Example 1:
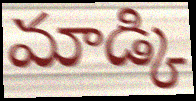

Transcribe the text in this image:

మాడ్కి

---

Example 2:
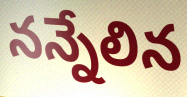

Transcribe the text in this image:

నన్నేలిన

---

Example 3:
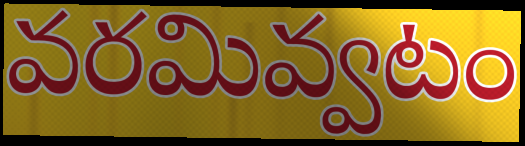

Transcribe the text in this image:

వరమివ్వటం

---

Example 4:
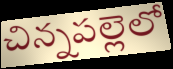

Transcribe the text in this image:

చిన్నపల్లెలో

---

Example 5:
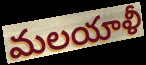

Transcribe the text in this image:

మలయాళీ